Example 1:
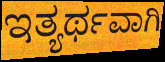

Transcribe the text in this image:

ಇತ್ಯರ್ಥವಾಗಿ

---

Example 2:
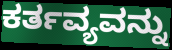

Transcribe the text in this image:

ಕರ್ತವ್ಯವನ್ನು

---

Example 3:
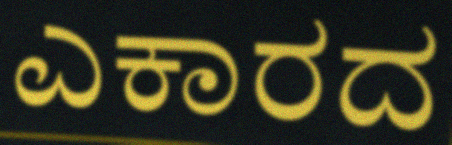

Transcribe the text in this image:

ಎಕಾರದ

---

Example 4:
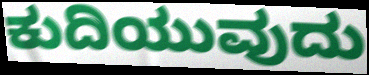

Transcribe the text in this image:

ಕುದಿಯುವುದು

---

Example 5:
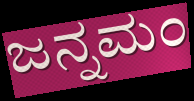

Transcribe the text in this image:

ಜನ್ನಮಂ